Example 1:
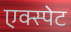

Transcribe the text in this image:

एक्स्पेट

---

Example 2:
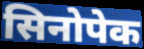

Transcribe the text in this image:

सिनोपेक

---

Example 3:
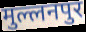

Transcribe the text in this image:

मुल्लनपुर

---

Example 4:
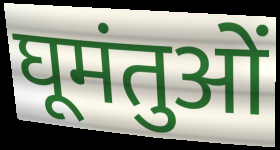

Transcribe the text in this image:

घूमंतुओं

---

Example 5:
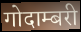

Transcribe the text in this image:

गोदाम्बरी